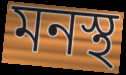
মনস্থ